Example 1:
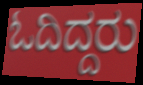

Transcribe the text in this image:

ಓದಿದ್ದರು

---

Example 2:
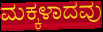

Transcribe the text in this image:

ಮಕ್ಕಳಾದವು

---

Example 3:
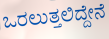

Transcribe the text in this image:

ಒರಲುತ್ತಲಿದ್ದೇನೆ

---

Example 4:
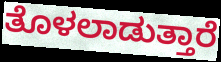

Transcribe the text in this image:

ತೊಳಲಾಡುತ್ತಾರೆ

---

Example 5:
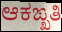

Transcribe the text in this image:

ಆಕಙ್ಖತಿ